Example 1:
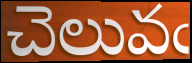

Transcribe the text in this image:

చెలువఁ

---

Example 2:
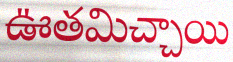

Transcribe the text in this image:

ఊతమిచ్చాయి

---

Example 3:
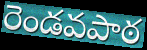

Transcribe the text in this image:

రెండవపాఠ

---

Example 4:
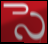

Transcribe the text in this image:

సె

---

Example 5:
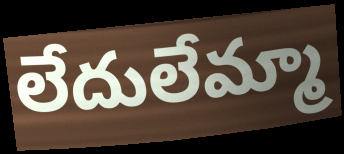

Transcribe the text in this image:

లేదులేమ్మా